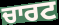
ਚਾਰਟ